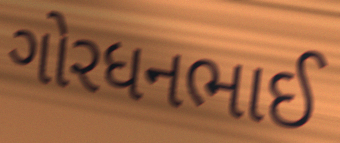
ગોરધનભાઈ